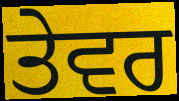
ਤੇਵਰ